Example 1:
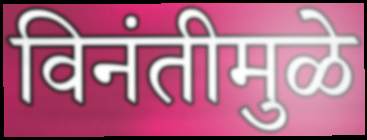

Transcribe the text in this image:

विनंतीमुळे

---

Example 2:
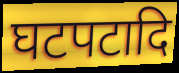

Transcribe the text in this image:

घटपटादि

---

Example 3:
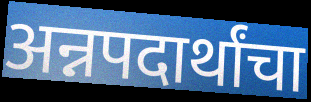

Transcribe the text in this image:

अन्नपदार्थांचा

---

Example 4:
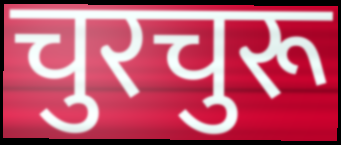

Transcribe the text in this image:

चुरचुरू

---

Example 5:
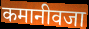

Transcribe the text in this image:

कमानीवजा